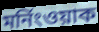
মর্নিংওয়াক